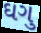
ઘગુ